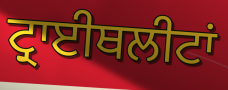
ਟ੍ਰਾਈਥਲੀਟਾਂ